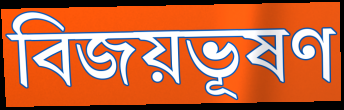
বিজয়ভূষণ